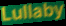
Lullaby